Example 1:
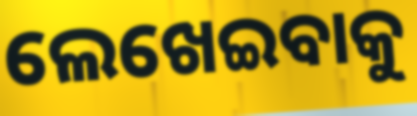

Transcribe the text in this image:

ଲେଖେଇବାକୁ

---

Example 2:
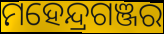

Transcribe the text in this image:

ମହେନ୍ଦ୍ରଗଞ୍ଜର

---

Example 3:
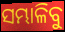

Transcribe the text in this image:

ସମ୍ଭାଳିବୁ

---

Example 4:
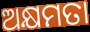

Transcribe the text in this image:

ଅକ୍ଷମତା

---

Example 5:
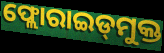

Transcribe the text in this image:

ଫ୍ଲୋରାଇଡ୍‌ମୁକ୍ତ